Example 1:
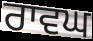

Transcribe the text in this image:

ਰਾਵਘ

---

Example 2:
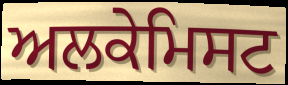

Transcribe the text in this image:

ਅਲਕੇਮਿਸਟ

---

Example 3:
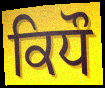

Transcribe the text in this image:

ਕਿਧੌ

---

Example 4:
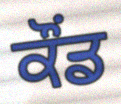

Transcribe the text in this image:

ਕੌਂਡ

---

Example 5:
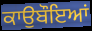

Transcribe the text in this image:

ਕਾਉਬੌਇਆਂ